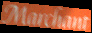
Marchant